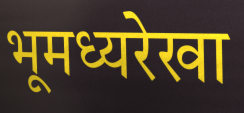
भूमध्यरेखा